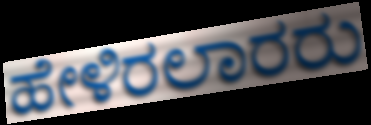
ಹೇಳಿರಲಾರರು